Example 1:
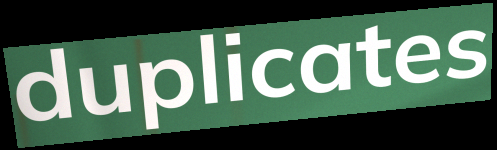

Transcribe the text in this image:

duplicates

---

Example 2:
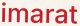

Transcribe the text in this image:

imarat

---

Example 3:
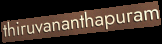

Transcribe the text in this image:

thiruvananthapuram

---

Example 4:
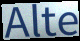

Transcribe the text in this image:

Alte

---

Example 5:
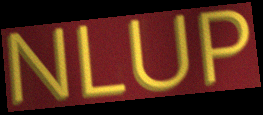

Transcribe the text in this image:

NLUP